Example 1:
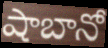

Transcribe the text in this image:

షాబానో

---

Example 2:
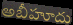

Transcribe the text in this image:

అబీహూదు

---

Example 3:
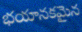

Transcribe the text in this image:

భయానకమైన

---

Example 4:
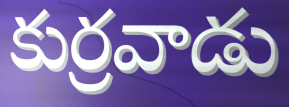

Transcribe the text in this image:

కుర్రవాడు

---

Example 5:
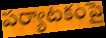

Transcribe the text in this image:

పర్యాటకంపై